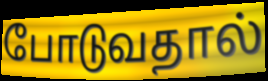
போடுவதால்